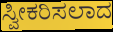
ಸ್ವೀಕರಿಸಲಾದ